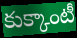
కుక్కాంటీ